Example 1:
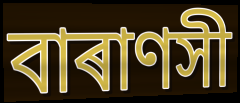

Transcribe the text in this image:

বাৰাণসী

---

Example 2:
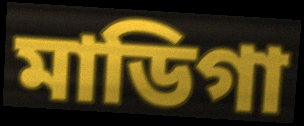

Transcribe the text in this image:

মাডিগা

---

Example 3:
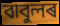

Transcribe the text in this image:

বাবুলৰ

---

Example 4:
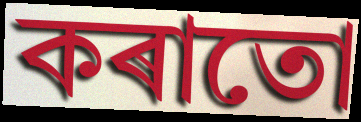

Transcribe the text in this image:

কৰাতো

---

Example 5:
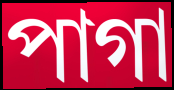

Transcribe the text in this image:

পাগা